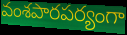
వంశపారపర్యంగా